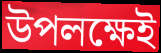
উপলক্ষেই